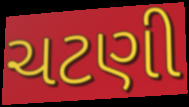
ચટણી